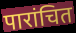
पारांचित